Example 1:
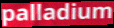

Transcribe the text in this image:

palladium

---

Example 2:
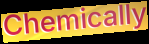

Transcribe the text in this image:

Chemically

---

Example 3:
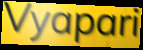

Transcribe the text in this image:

Vyapari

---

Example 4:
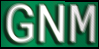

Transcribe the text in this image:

GNM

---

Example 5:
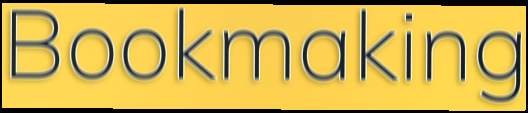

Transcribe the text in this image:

Bookmaking